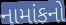
નામાંકનો